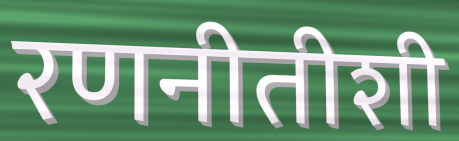
रणनीतीशी